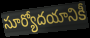
సూర్యోదయానికీ